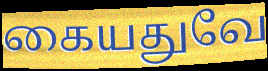
கையதுவே